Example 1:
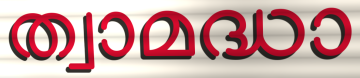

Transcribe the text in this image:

ത്വാമദ്ധാ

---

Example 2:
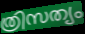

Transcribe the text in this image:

ത്രിസത്യം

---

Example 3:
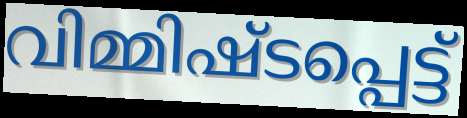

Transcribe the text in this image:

വിമ്മിഷ്ടപ്പെട്ട്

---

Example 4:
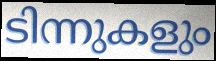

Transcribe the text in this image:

ടിന്നുകളും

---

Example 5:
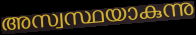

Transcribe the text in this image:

അസ്വസ്ഥയാകുന്നു